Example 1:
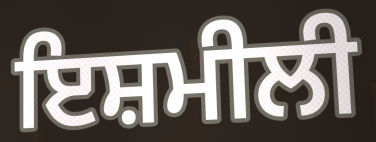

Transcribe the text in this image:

ਇਸ਼ਮੀਲੀ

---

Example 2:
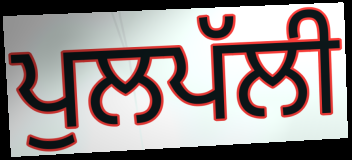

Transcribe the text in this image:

ਪੁਲਪੱਲੀ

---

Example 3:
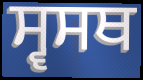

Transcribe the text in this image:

ਸ੍ਵਸਥ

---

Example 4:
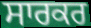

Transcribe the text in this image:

ਸਾਰਕਰ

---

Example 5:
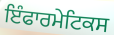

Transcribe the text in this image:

ਇੰਫਾਰਮੇਟਿਕਸ